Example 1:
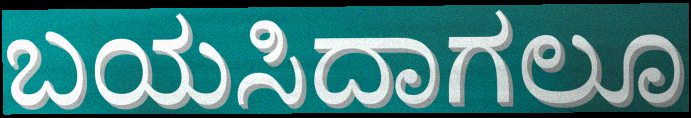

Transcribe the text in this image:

ಬಯಸಿದಾಗಲೂ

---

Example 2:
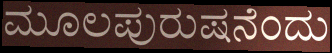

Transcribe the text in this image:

ಮೂಲಪುರುಷನೆಂದು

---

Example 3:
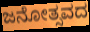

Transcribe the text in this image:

ಜನೋತ್ಸವದ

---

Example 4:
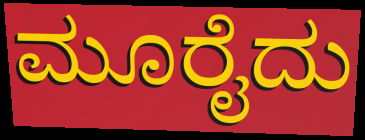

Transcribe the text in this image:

ಮೂರೈದು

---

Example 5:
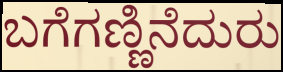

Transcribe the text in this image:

ಬಗೆಗಣ್ಣಿನೆದುರು